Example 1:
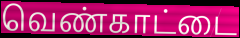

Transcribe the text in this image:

வெண்காட்டை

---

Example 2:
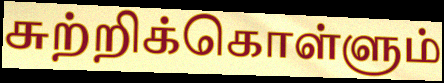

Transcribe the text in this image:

சுற்றிக்கொள்ளும்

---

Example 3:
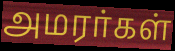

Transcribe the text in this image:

அமரர்கள்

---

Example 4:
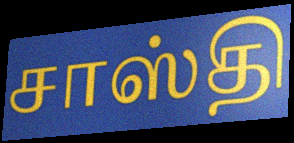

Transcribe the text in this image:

சாஸ்தி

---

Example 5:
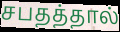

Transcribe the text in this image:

சபதத்தால்